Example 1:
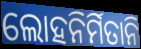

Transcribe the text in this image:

ଲୋହନିର୍ମିତାନି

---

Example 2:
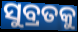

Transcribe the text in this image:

ସୁବ୍ରତକୁ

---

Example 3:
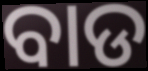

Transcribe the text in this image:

ବାଡ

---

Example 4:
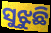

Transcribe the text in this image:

ସୁଝୁଛି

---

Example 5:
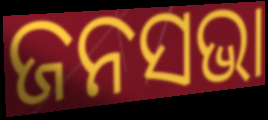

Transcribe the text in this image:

ଜନସଭା